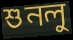
শুনলু